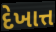
દેખાત્ત